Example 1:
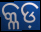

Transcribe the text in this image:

କ୍ଳଡ଼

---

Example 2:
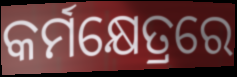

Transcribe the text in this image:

କର୍ମକ୍ଷେତ୍ରରେ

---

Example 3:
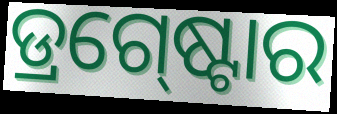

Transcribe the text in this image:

ଡ୍ରଗ୍‍ଷ୍ଟୋର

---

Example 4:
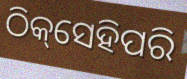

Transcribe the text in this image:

ଠିକ୍‌ସେହିପରି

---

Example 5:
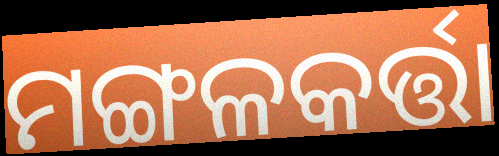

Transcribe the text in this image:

ମଙ୍ଗଳକର୍ତ୍ତା